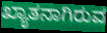
ಖ್ಯಾತನಾಗಿರುವ